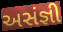
અસંજ્ઞી